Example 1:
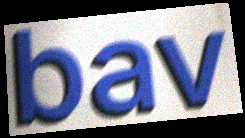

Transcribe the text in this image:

bav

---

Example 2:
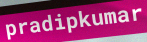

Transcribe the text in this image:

pradipkumar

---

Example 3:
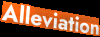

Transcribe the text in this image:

Alleviation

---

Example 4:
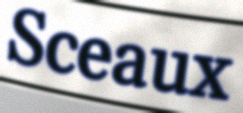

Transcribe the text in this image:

Sceaux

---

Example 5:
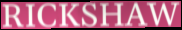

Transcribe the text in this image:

RICKSHAW